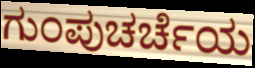
ಗುಂಪುಚರ್ಚೆಯ